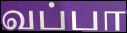
வப்பா